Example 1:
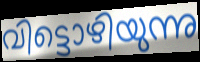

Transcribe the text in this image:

വിട്ടൊഴിയുന്നു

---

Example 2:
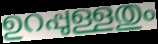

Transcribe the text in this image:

ഉറപ്പുള്ളതും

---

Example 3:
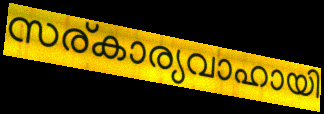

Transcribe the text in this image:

സര്കാര്യവാഹായി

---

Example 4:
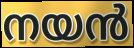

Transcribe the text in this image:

നയൻ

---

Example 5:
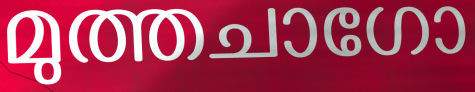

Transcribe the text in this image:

മുത്തചാഗോ